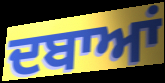
ਦਬਾਆਂ